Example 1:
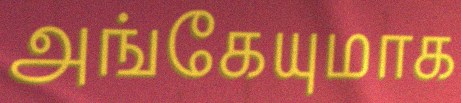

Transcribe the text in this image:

அங்கேயுமாக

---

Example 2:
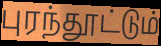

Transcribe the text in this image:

புரந்தூட்டும்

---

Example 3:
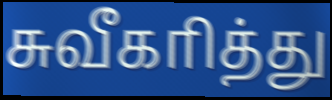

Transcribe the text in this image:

சுவீகரித்து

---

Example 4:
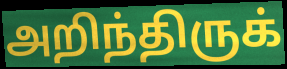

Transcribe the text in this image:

அறிந்திருக்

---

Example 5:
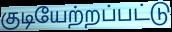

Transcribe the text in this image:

குடியேற்றப்பட்டு